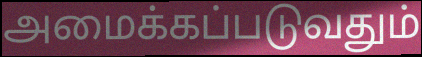
அமைக்கப்படுவதும்